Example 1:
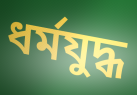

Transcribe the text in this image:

ধর্মযুদ্ধ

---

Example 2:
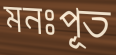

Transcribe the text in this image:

মনঃপূত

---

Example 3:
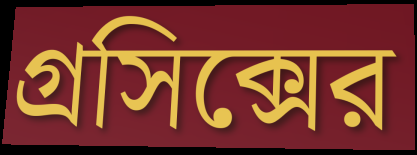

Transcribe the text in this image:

গ্রসিক্সের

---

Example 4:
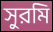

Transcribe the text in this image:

সুরমি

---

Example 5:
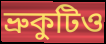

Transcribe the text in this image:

ভ্রুকুটিও